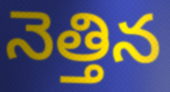
నెత్తిన